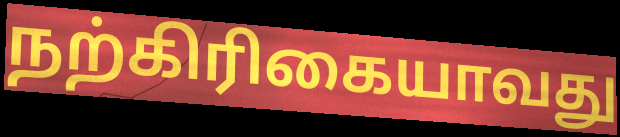
நற்கிரிகையாவது